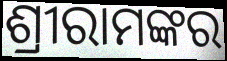
ଶ୍ରୀରାମଙ୍କର